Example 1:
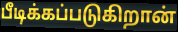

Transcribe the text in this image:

பீடிக்கப்படுகிறான்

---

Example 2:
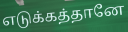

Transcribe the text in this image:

எடுக்கத்தானே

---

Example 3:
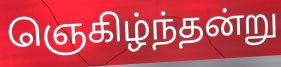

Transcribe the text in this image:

ஞெகிழ்ந்தன்று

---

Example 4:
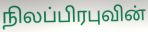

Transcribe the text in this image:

நிலப்பிரபுவின்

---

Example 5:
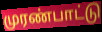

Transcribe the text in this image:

முரண்பாட்டு